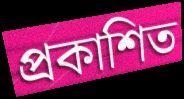
প্ৰকাশিত